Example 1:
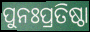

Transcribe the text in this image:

ପୁନଃପ୍ରତିଷ୍ଠା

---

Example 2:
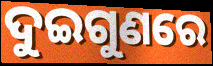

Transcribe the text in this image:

ଦୁଇଗୁଣରେ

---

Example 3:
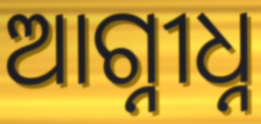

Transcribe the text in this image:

ଆଗ୍ନୀଧ୍ନ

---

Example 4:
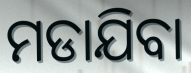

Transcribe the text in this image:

ମଡାଯିବା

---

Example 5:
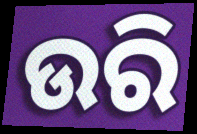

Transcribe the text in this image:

ଉରି